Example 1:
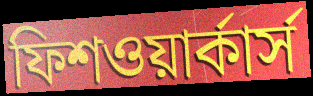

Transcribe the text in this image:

ফিশওয়ার্কার্স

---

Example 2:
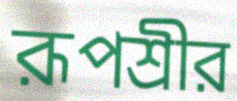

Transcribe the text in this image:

রূপশ্রীর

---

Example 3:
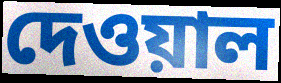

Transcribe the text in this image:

দেওয়াল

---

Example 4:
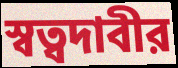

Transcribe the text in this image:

স্বত্বদাবীর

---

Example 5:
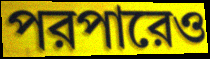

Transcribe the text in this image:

পরপারেও